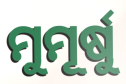
ମୁମୂର୍ଷୁ